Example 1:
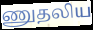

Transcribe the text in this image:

ணுதலிய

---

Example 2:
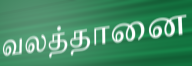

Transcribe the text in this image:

வலத்தானை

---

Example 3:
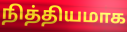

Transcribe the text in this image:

நித்தியமாக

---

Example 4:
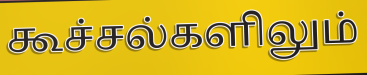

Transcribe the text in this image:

கூச்சல்களிலும்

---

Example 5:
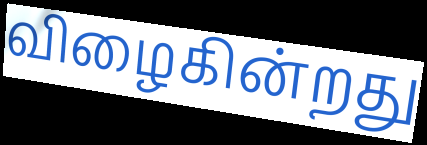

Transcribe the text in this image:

விழைகின்றது